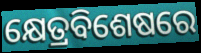
କ୍ଷେତ୍ରବିଶେଷରେ